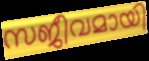
സജീവമായി